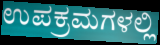
ಉಪಕ್ರಮಗಳಲ್ಲಿ